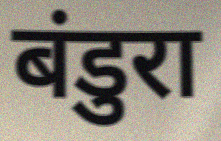
बंडुरा